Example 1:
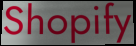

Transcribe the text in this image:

Shopify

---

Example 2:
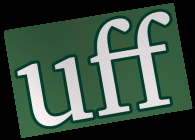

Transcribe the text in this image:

uff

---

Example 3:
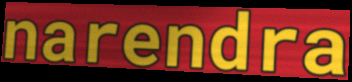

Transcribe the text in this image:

narendra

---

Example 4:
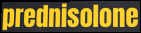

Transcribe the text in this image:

prednisolone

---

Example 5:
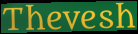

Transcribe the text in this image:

Thevesh